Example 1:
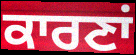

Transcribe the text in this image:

ਕਾਰਣਾਂ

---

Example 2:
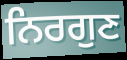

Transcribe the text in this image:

ਨਿਰਗੁਣ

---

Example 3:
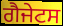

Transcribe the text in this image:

ਗੈਜੇਟਸ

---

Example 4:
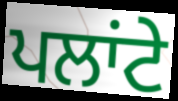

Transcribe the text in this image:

ਪਲਾਂਟੇ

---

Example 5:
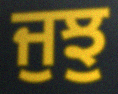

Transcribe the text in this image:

ਜੁਝੁ